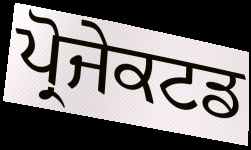
ਪ੍ਰੋਜੇਕਟਡ